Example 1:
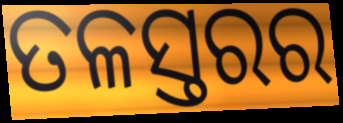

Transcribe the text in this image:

ତଳସ୍ତରର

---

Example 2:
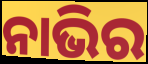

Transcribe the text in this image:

ନାଭିର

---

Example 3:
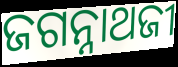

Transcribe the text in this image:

ଜଗନ୍ନାଥଜୀ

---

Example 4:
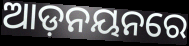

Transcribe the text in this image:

ଆଡ଼ନୟନରେ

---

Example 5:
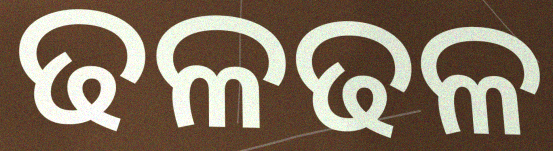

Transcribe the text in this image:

ଢଳଢଳ